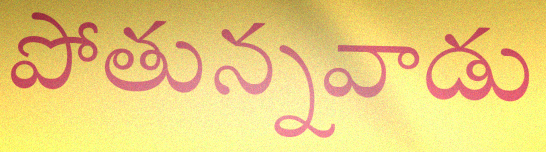
పోతున్నవాడు